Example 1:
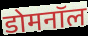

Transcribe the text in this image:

डोमनॉल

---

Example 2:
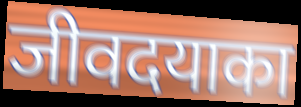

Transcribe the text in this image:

जीवदयाका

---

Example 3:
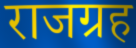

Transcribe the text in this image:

राजग्रह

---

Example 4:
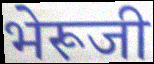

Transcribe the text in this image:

भेरूजी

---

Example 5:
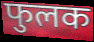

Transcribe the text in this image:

फुलक